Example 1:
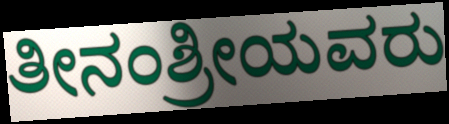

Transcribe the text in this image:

ತೀನಂಶ್ರೀಯವರು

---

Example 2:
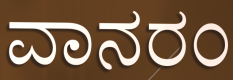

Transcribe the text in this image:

ವಾನರಂ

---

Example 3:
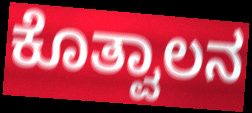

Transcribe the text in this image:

ಕೊತ್ವಾಲನ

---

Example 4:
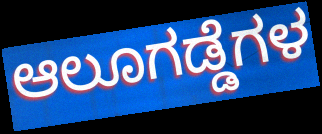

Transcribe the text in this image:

ಆಲೂಗಡ್ಡೆಗಳ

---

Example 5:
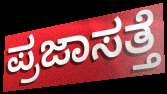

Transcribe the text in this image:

ಪ್ರಜಾಸತ್ತೆ